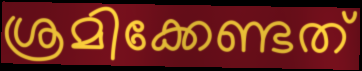
ശ്രമിക്കേണ്ടത്